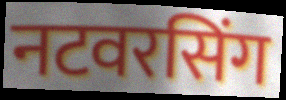
नटवरसिंग